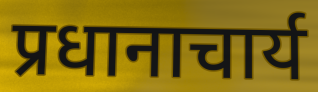
प्रधानाचार्य